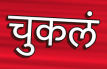
चुकलं